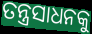
ତନ୍ତ୍ରସାଧନକୁ